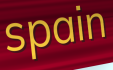
spain